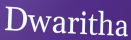
Dwaritha